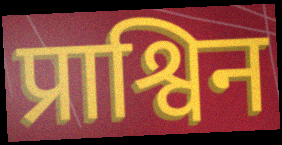
प्राश्विन